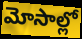
మోసాల్లో